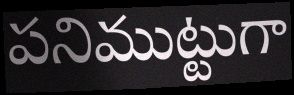
పనిముట్టుగా